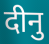
दीनु